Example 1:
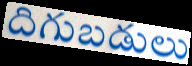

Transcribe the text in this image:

దిగుబడులు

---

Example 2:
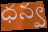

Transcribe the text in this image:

ధన్వ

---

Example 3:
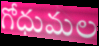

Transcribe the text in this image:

గోధుమల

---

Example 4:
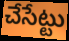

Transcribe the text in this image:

చేసేట్టు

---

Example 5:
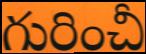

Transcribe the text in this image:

గురించీ